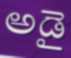
అడై